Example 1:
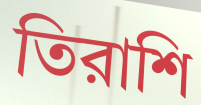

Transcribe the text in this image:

তিরাশি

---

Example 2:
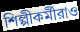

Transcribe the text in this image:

শিল্পীকর্মীরাও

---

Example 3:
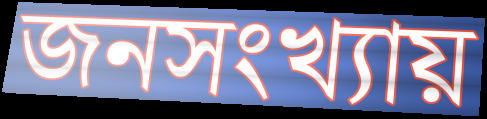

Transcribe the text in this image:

জনসংখ্যায়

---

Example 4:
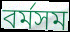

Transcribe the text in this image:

বর্মসম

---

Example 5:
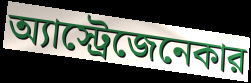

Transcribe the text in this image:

অ্যাস্ট্রেজেনেকার